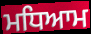
ਮਧਿਆਮ